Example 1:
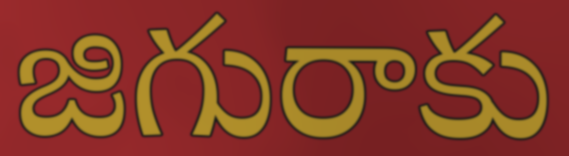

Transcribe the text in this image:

జిగురాకు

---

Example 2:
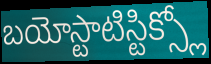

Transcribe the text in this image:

బయోస్టాటిస్టిక్స్లో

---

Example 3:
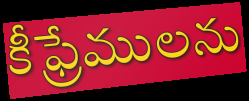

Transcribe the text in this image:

కీఫ్రేములను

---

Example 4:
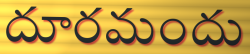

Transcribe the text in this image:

దూరమందు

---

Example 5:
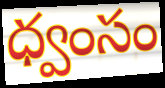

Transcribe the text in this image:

ధ్వంసం